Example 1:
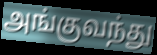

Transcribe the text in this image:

அங்குவந்து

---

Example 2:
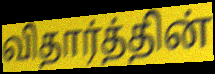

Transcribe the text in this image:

விதார்த்தின்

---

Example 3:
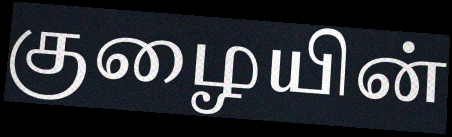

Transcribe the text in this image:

குழையின்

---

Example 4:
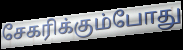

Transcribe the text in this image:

சேகரிக்கும்போது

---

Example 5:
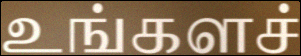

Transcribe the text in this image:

உங்களச்